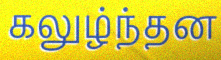
கலுழ்ந்தன